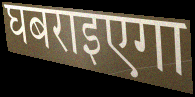
घबराइएगा